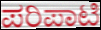
ಪರಿಪಾಟಿ